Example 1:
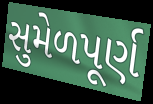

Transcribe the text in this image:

સુમેળપૂર્ણ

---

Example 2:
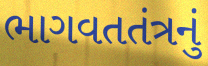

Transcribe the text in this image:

ભાગવતતંત્રનું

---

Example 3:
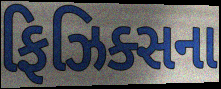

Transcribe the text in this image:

ફિઝિક્સના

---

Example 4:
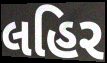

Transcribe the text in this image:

લહિર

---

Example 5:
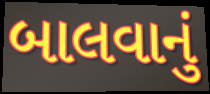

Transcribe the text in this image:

બાલવાનું